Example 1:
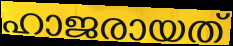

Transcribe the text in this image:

ഹാജരായത്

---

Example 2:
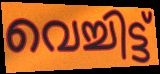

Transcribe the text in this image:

വെച്ചിട്ട്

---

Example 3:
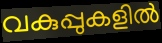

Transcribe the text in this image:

വകുപ്പുകളിൽ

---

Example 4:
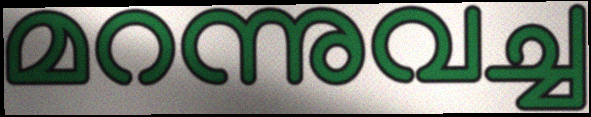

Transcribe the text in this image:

മറന്നുവച്ച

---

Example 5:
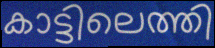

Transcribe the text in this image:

കാട്ടിലെത്തി